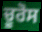
ਚੂਰੋਸ